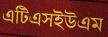
এটিএসইউএম